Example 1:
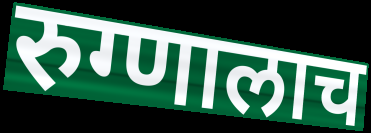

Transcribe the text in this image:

रुग्णालाच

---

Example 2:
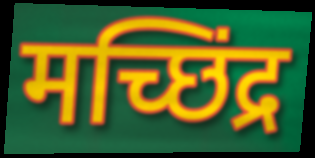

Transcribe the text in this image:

मच्छिंद्र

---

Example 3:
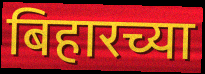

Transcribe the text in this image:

बिहारच्या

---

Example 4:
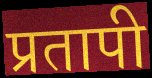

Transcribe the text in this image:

प्रतापी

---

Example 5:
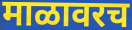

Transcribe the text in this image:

माळावरच